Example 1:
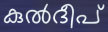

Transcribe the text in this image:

കുൽദീപ്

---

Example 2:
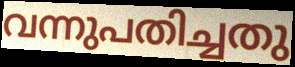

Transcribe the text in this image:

വന്നുപതിച്ചതു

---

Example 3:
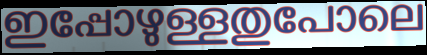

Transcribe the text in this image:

ഇപ്പോഴുള്ളതുപോലെ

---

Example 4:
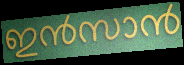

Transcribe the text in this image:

ഇൻസാൻ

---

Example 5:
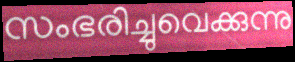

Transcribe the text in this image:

സംഭരിച്ചുവെക്കുന്നു